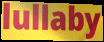
lullaby